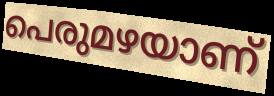
പെരുമഴയാണ്